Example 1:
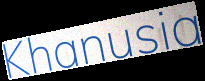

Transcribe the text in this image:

Khanusia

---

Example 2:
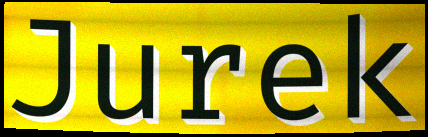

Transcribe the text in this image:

Jurek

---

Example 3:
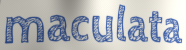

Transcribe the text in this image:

maculata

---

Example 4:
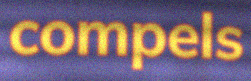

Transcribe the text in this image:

compels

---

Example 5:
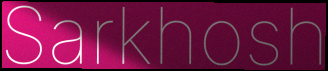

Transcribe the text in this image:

Sarkhosh